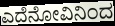
ಎದೆನೋವಿನಿಂದ